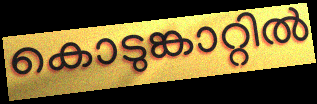
കൊടുങ്കാറ്റിൽ